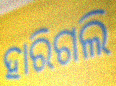
ହାରିଗଲି